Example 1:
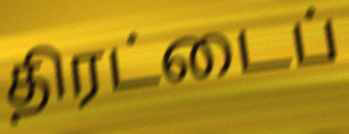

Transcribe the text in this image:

திரட்டைப்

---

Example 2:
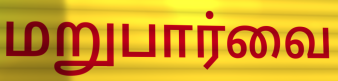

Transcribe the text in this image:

மறுபார்வை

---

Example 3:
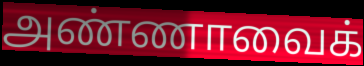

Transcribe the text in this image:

அண்ணாவைக்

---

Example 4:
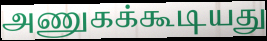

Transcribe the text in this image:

அணுகக்கூடியது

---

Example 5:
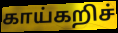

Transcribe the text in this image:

காய்கறிச்